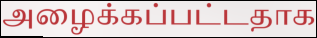
அழைக்கப்பட்டதாக